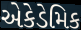
એકેડેમિક